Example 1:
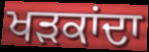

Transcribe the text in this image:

ਖੜਕਾਂਦਾ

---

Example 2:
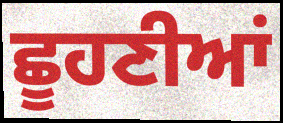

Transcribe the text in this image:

ਛੂਹਣੀਆਂ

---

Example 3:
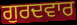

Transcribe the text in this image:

ਗੁਰਦਵਾਰ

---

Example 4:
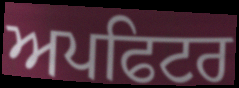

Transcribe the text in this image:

ਅਪਫਿਟਰ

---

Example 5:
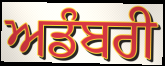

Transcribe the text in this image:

ਅਡੰਬਰੀ